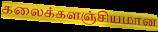
கலைக்களஞ்சியமான